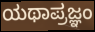
ಯಥಾಪ್ರಜ್ಞಂ